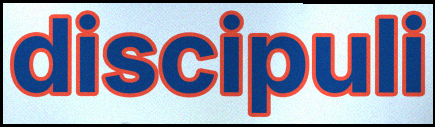
discipuli